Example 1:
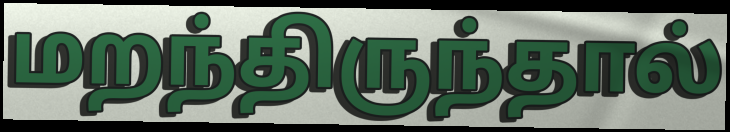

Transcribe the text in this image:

மறந்திருந்தால்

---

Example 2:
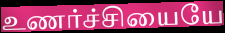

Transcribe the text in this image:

உணர்ச்சியையே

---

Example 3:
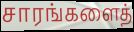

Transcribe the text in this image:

சாரங்களைத்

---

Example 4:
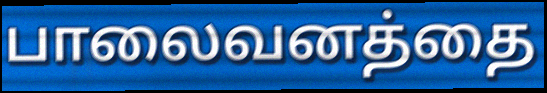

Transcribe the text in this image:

பாலைவனத்தை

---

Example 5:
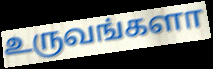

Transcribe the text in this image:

உருவங்களா